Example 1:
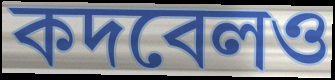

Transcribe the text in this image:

কদবেলও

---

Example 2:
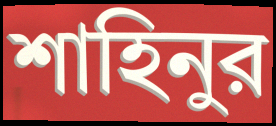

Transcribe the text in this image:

শাহিনুর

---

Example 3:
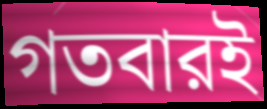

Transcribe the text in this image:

গতবারই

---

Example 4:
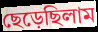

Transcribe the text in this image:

ছেড়েছিলাম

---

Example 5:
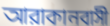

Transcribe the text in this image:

আরাকানবাসী